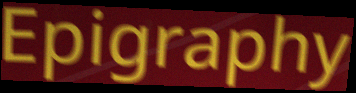
Epigraphy